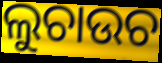
ଲୁଚାଉଚ